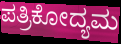
ಪತ್ರಿಕೋದ್ಯಮ